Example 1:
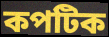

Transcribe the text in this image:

কপটিক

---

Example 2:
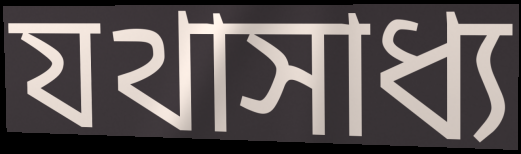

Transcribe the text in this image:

যথাসাধ্য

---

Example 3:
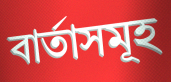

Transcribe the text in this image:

বাৰ্তাসমূহ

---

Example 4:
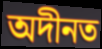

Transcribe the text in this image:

অদীনত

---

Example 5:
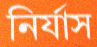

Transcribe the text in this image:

নিৰ্যাস